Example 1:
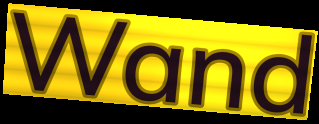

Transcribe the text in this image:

Wand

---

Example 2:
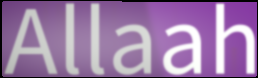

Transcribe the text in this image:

Allaah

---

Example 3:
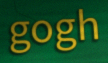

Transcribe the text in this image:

gogh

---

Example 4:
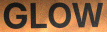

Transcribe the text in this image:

GLOW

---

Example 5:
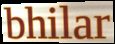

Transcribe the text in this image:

bhilar